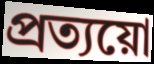
প্ৰত্যয়ো